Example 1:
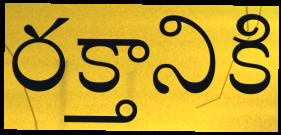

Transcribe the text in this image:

రక్తానికి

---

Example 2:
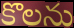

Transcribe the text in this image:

కొలను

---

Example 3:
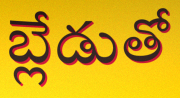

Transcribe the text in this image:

బ్లేడుతో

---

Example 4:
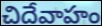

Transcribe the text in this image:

చిదేవాహం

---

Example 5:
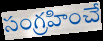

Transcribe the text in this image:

సంగ్రహించే